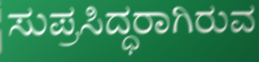
ಸುಪ್ರಸಿದ್ಧರಾಗಿರುವ